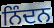
ਨਿੰਦਨ